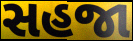
સહજા